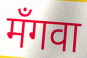
मँगवा